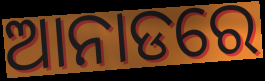
ଆନାଡରେ